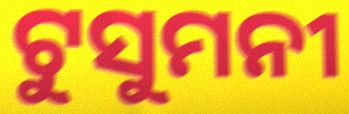
ଟୁସୁମନୀ